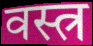
वस्‍त्र